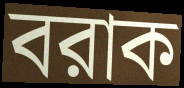
বরাক